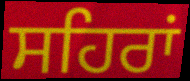
ਸਹਿਰਾਂ